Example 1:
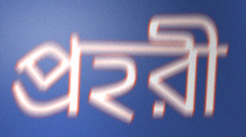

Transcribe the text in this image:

প্রহরী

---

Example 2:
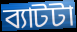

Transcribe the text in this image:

ব্যাটটা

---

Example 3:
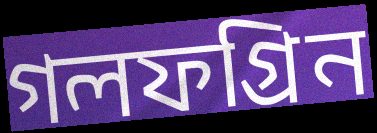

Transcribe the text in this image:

গলফগ্রিন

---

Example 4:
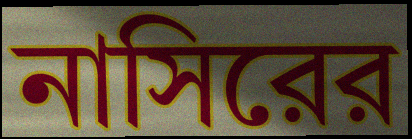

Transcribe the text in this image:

নাসিরের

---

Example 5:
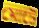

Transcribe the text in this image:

মোটে